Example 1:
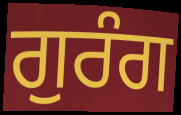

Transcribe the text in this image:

ਗੁਰੰਗ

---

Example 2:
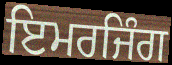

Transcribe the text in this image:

ਇਮਰਜਿੰਗ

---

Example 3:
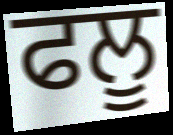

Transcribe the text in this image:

ਫਲੂ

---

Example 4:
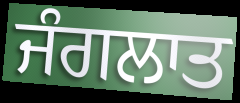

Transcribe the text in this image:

ਜੰਗਲਾਤ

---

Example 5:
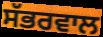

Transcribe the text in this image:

ਸੱਭਰਵਾਲ